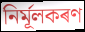
নিৰ্মূলকৰণ